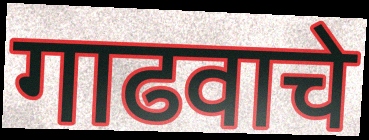
गाढवाचे